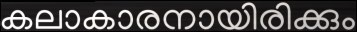
കലാകാരനായിരിക്കും